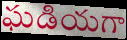
ఘడియగా